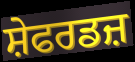
ਸ਼ੇਫਰਡਜ਼